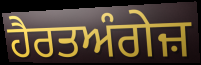
ਹੈਰਤਅੰਗੇਜ਼